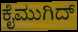
ಕೈಮುಗಿದ್